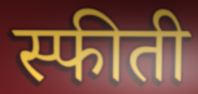
स्फीती